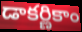
డాకర్ణికాం